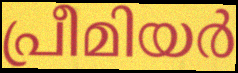
പ്രീമിയർ